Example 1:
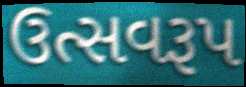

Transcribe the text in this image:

ઉત્સવરૂપ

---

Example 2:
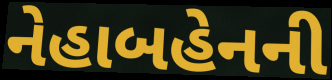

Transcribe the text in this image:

નેહાબહેનની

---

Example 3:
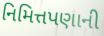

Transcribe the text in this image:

નિમિત્તપણાની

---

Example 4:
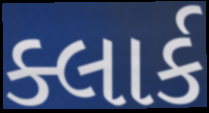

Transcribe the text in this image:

ક્લાર્ક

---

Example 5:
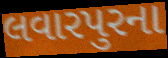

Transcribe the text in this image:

લવારપુરના